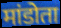
मांडोता